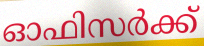
ഓഫിസർക്ക്